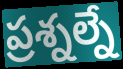
ప్రశ్నల్నే